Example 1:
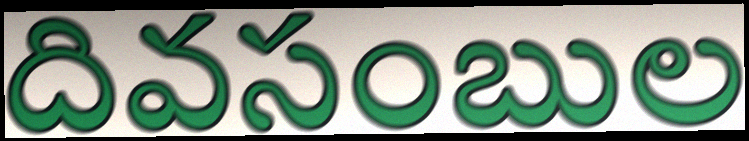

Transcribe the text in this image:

దివసంబుల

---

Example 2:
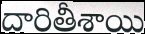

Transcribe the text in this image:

దారితీశాయి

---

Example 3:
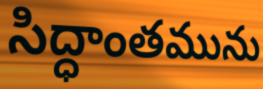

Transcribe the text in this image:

సిద్ధాంతమును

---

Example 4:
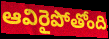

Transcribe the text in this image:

ఆవిరైపోతోంది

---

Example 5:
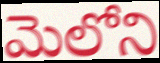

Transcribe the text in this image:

మెలోని